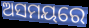
ଅସମୟରେ